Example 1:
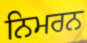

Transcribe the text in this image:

ਨਿਮਰਨ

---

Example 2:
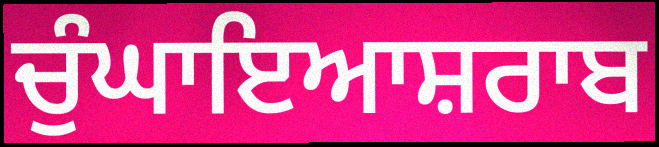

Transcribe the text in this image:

ਚੁੰਘਾਇਆਸ਼ਰਾਬ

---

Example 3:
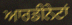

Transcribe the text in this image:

ਆਰਡੀਨੇਟਾਂ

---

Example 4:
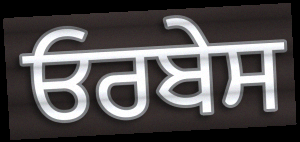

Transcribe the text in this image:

ਓਰਬੇਸ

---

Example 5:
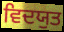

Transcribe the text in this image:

ਵਿਦਯੁਤ